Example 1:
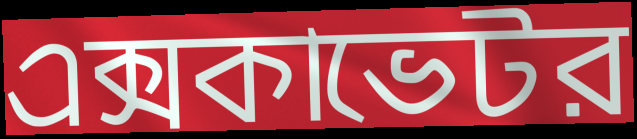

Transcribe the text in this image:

এক্সকাভেটর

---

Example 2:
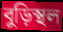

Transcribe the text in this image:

বুড়িস্থল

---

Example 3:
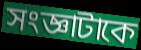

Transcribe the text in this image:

সংজ্ঞাটাকে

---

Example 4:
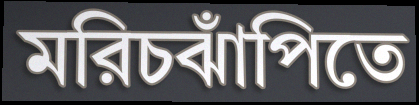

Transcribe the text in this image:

মরিচঝাঁপিতে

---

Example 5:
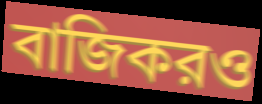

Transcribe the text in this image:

বাজিকরও